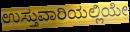
ಉಸ್ತುವಾರಿಯಲ್ಲಿಯೇ